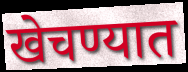
खेचण्यात